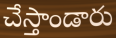
చేస్తాండారు